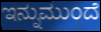
ಇನ್ನುಮುಂದೆ